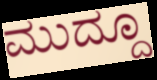
ಮುದ್ದೂ